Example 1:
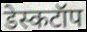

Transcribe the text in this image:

डेस्कटॉप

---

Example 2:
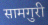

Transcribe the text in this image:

सामगुरी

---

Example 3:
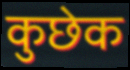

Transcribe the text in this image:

कुछेक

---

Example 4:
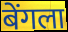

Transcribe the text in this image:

बेंगला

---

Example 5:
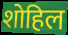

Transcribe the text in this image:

शोहिल